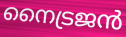
നൈട്രജൻ